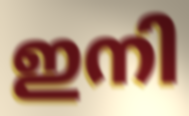
ഇനി